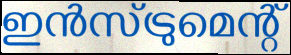
ഇൻസ്ട്രുമെന്റ്